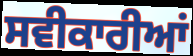
ਸਵੀਕਾਰੀਆਂ